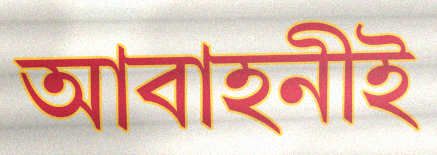
আবাহনীই